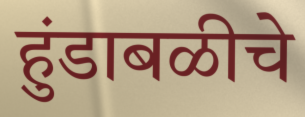
हुंडाबळीचे